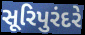
સૂરિપુરંદરે